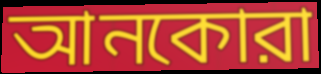
আনকোরা